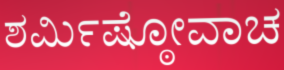
ಶರ್ಮಿಷ್ಠೋವಾಚ